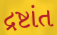
દ્રષ્ટાંત